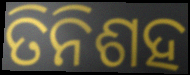
ତିନିଶହ